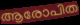
ആരോപിത